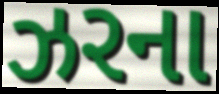
ઝરના